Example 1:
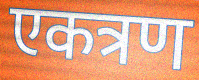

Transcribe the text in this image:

एकत्रण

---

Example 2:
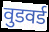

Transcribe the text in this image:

वुडवर्ड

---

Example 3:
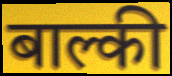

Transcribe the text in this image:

बाल्‍की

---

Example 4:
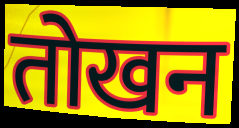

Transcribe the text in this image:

तोखन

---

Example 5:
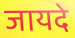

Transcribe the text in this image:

जायदे